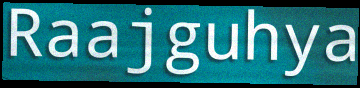
Raajguhya